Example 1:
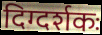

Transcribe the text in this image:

दिग्दर्शकः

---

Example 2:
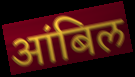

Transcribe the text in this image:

आंबिल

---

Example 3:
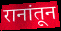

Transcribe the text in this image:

रानांतून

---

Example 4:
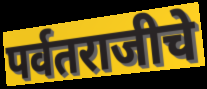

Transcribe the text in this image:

पर्वतराजीचे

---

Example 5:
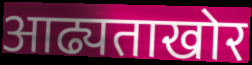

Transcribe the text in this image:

आढ्यताखोर